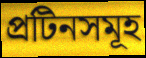
প্ৰটিনসমূহ